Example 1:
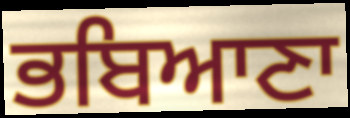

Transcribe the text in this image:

ਭਬਿਆਣਾ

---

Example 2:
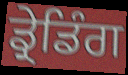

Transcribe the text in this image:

ਡ੍ਰੇਡਿੰਗ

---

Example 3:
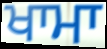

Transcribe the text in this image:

ਖਾਮਾ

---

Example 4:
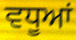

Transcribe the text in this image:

ਵਧੂਆਂ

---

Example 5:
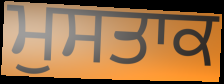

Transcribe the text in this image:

ਮੁਸਤਾਕ